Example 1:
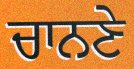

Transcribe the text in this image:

ਚਾਨਣੇ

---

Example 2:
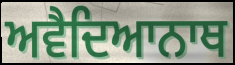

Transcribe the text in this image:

ਅਵੈਦਿਆਨਾਥ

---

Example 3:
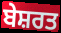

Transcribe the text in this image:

ਬੇਸ਼ਰਤ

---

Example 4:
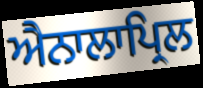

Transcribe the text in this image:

ਐਨਾਲਾਪ੍ਰਿਲ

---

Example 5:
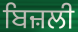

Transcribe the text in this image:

ਬਿਜ਼ਲੀ